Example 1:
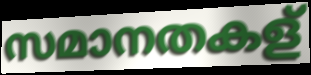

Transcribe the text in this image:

സമാനതകള്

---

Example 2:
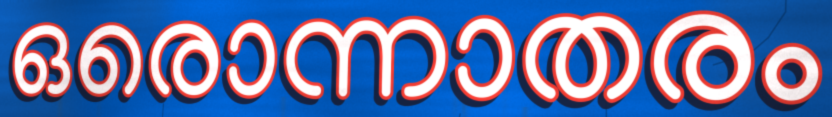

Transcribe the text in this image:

ഒരൊന്നാതരം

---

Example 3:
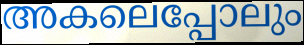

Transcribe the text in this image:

അകലെപ്പോലും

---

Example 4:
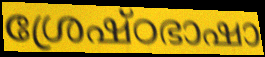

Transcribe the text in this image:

ശ്രേഷ്ഠഭാഷാ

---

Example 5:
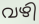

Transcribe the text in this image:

വഴി